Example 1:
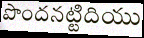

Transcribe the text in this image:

పొందనట్టిదియు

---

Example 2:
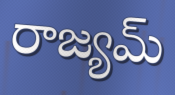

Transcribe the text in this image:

రాజ్యమ్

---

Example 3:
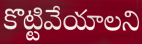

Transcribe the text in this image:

కొట్టివేయాలని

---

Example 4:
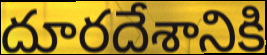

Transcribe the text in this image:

దూరదేశానికి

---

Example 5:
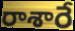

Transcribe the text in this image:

రాశారే